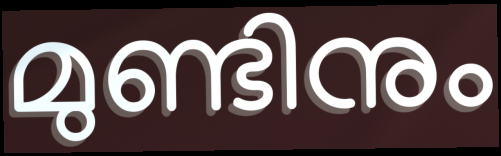
മുണ്ടിനും